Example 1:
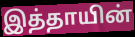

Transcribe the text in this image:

இத்தாயின்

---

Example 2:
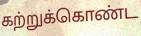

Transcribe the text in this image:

கற்றுக்கொண்ட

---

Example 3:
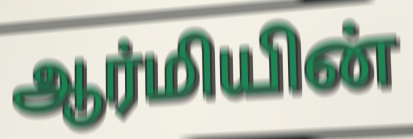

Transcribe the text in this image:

ஆர்மியின்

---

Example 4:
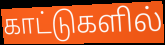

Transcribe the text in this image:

காட்டுகளில்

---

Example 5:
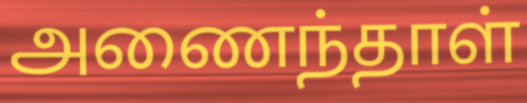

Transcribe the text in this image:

அணைந்தாள்